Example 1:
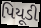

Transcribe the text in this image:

પિયૂડી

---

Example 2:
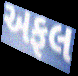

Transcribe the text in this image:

અફલ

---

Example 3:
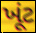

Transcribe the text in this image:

ખૂંટ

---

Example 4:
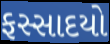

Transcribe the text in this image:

ફસ્સાદયો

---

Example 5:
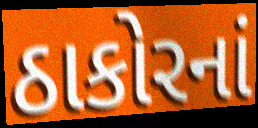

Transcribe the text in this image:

ઠાકોરનાં